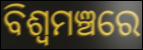
ବିଶ୍ୱମଞ୍ଚରେ